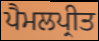
ਪੈਮਲਪ੍ਰੀਤ